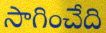
సాగించేది